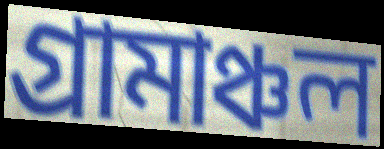
গ্ৰামাঞ্চল